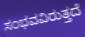
ಸಂಭವವಿರುತ್ತದೆ